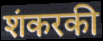
शंकरकी